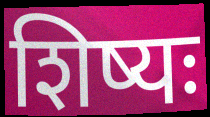
शिष्यः